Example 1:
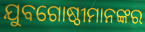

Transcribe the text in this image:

ଯୁବଗୋଷ୍ଠୀମାନଙ୍କର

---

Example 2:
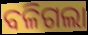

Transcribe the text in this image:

ବଳିଗଲା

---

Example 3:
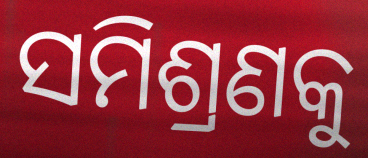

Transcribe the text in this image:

ସମିଶ୍ରଣକୁ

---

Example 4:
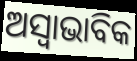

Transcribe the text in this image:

ଅସ୍ଵାଭାବିକ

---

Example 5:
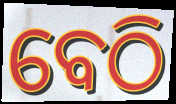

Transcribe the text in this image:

ବେଠି